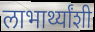
लाभार्थ्यांशी